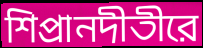
শিপ্রানদীতীরে